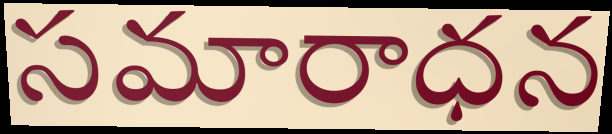
సమారాధన